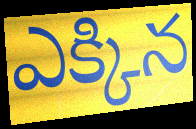
ఎక్కిన